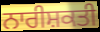
ਨਾਰੀਸ਼ਕਤੀ